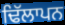
ਢਿੱਲਾਪਨ